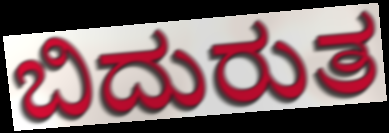
ಬಿದುರುತ